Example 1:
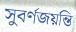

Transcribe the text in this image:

সুবর্ণজয়ন্তি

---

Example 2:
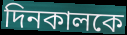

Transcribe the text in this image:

দিনকালকে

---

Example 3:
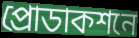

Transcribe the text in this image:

প্রোডাকশনে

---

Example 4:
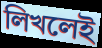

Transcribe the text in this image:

লিখলেই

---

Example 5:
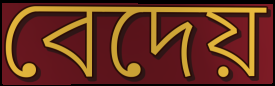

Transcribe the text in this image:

বেদেয়